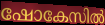
ഷോകേസിൽ